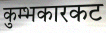
कुम्भकारकट